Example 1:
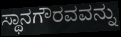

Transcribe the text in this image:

ಸ್ಥಾನಗೌರವವನ್ನು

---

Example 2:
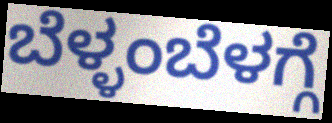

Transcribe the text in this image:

ಬೆಳ್ಳಂಬೆಳಗ್ಗೆ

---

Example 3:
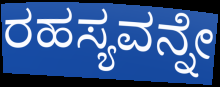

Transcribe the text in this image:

ರಹಸ್ಯವನ್ನೇ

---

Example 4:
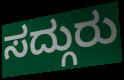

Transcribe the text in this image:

ಸದ್ಗುರು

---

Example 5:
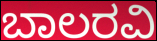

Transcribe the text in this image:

ಬಾಲರವಿ